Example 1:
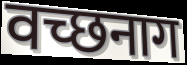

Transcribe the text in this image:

वच्छनाग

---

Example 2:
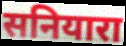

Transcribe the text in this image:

सनियारा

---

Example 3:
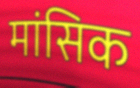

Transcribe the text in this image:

मांसिक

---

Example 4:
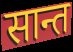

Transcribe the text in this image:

सान्त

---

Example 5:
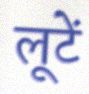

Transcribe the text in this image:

लूटें